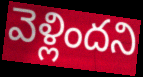
వెళ్లిందని